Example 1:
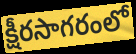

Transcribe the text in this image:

క్షీరసాగరంలో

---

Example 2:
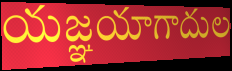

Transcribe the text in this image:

యజ్ఞయాగాదుల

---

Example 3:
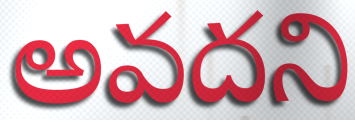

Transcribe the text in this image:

అవదని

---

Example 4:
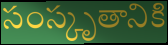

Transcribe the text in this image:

సంస్కృతానికి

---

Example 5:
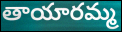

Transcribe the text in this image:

తాయారమ్మ